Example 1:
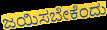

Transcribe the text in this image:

ಜಯಿಸಬೇಕೆಂದು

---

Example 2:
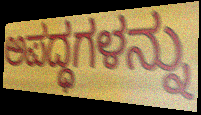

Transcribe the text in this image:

ಅಪದ್ಧಗಳನ್ನು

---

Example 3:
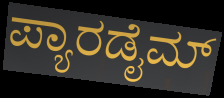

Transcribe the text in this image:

ಪ್ಯಾರಡೈಮ್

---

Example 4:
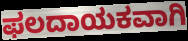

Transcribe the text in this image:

ಫಲದಾಯಕವಾಗಿ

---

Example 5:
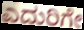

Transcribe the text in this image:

ಎದುರಿಗೇ